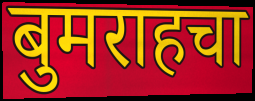
बुमराहचा